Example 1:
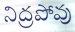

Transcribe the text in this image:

నిద్రపోవు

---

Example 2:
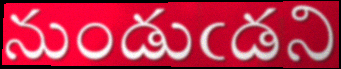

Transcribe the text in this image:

నుండుఁడని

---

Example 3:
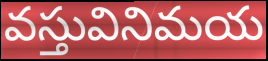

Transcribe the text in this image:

వస్తువినిమయ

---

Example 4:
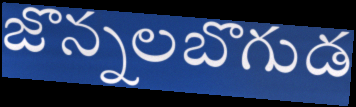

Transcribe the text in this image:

జొన్నలబొగుడ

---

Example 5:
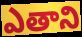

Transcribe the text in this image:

ఎతాని